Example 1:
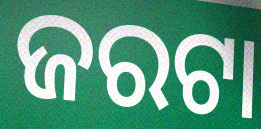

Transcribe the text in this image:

ଜରଟା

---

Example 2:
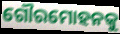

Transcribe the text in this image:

ଗୌରମୋହନକୁ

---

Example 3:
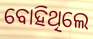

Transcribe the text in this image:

ବୋହିଥିଲେ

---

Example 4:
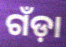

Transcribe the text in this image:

ଗଁଡ଼ା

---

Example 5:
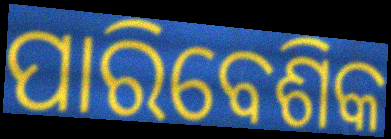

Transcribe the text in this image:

ପାରିବେଶିକ